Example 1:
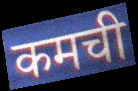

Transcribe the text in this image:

कमची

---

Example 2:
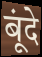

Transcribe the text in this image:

बूंदे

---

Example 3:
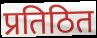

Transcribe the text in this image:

प्रतिठित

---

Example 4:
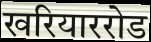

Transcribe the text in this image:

खरियाररोड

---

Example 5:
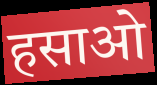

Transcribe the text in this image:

हसाओ